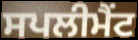
ਸਪਲੀਮੈਂਟ